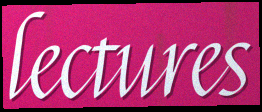
lectures